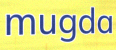
mugda